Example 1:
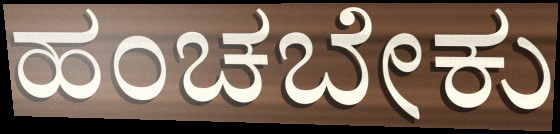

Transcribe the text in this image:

ಹಂಚಬೇಕು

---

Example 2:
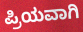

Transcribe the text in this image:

ಪ್ರಿಯವಾಗಿ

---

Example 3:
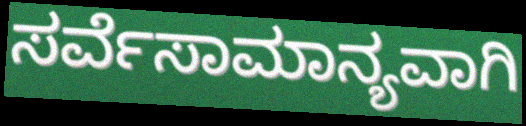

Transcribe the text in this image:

ಸರ್ವೆಸಾಮಾನ್ಯವಾಗಿ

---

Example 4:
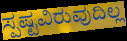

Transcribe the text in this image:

ಸ್ಪಷ್ಟವಿರುವುದಿಲ್ಲ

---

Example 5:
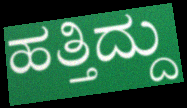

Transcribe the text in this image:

ಹತ್ತಿದ್ದು